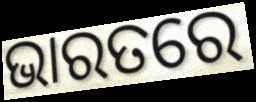
ଭାରତରେ